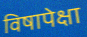
विषापेक्षा